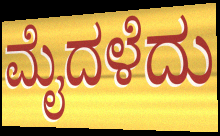
ಮೈದಳೆದು